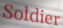
Soldier